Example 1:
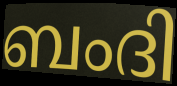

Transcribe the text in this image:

ബംദി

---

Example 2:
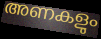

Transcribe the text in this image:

അണകളും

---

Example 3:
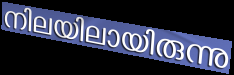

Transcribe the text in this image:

നിലയിലായിരുന്നു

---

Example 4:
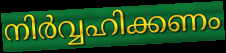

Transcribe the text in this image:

നിർവ്വഹിക്കണം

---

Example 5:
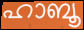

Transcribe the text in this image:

ഹാബൂ